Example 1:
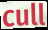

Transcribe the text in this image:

cull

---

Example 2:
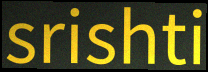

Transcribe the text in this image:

srishti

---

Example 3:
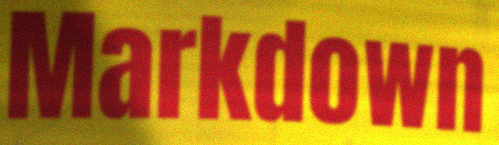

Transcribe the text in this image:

Markdown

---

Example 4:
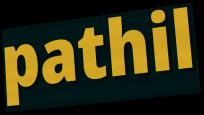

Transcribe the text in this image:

pathil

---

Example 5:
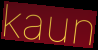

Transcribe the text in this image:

kaun